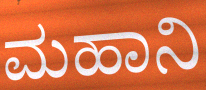
ಮಹಾನಿ